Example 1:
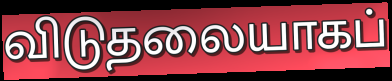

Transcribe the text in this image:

விடுதலையாகப்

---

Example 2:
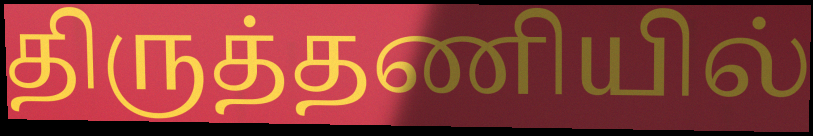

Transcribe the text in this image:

திருத்தணியில்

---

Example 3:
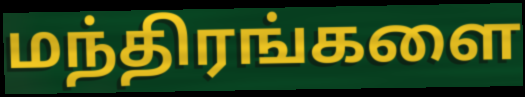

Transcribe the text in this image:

மந்திரங்களை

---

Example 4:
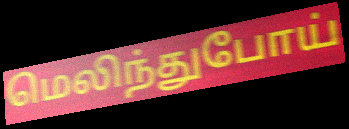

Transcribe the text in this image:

மெலிந்துபோய்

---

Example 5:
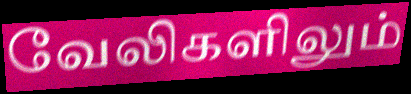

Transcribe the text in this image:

வேலிகளிலும்